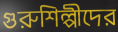
গুরুশিল্পীদের